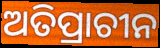
ଅତିପ୍ରାଚୀନ